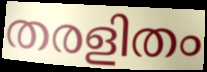
തരളിതം